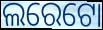
ଲରେଟୋ